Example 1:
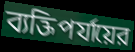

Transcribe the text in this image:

ব্যক্তিপর্যায়ের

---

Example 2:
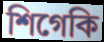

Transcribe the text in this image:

শিগেকি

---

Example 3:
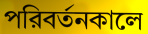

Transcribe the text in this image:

পরিবর্তনকালে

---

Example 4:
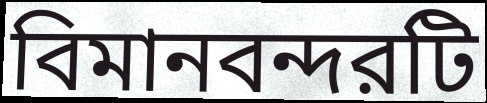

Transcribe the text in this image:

বিমানবন্দরটি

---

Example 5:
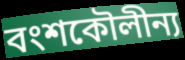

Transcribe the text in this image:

বংশকৌলীন্য